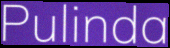
Pulinda